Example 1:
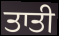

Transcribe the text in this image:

ਤਾਤੀ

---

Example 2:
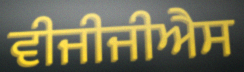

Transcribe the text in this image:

ਵੀਜੀਜੀਐਸ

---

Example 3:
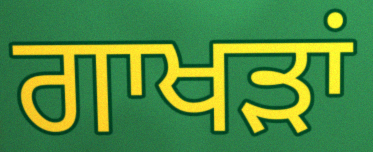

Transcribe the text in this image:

ਗਾਖੜਾਂ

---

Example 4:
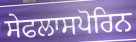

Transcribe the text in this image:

ਸੇਫਲਾਸਪੋਰਿਨ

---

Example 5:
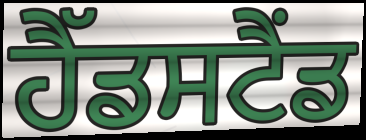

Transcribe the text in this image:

ਹੈੱਡਸਟੈਂਡ